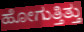
ಹೋಗುತ್ತಿತ್ತು